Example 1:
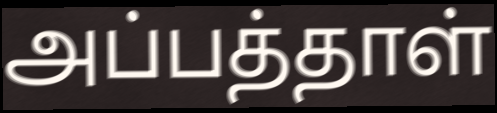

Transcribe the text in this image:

அப்பத்தாள்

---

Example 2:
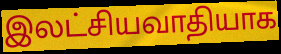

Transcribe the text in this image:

இலட்சியவாதியாக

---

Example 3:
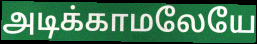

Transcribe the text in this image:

அடிக்காமலேயே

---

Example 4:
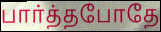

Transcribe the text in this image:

பார்த்தபோதே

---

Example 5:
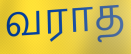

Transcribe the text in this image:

வராத